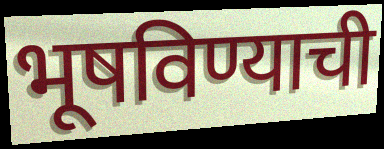
भूषविण्याची